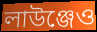
লাউঞ্জেও